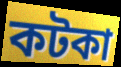
কটকা